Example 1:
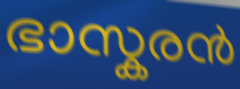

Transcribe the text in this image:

ഭാസ്കരൻ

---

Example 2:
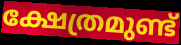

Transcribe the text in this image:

ക്ഷേത്രമുണ്ട്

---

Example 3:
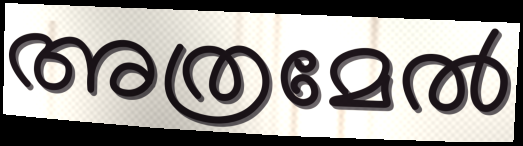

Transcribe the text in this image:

അത്രമേൽ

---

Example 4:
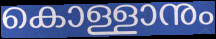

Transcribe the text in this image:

കൊള്ളാനും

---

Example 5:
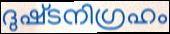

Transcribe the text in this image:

ദുഷ്‌ടനിഗ്രഹം